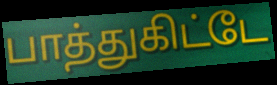
பாத்துகிட்டே